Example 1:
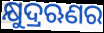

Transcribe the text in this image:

କ୍ଷୁଦ୍ରଋଣର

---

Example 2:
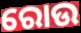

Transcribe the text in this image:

ରୋଉ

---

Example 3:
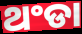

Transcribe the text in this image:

ଥଂଡା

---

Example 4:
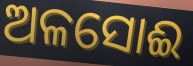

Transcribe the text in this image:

ଅଳସୋଈ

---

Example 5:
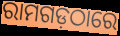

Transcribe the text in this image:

ରାମଗଡ଼ଠାରେ